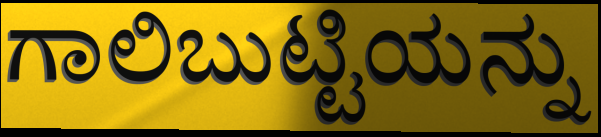
ಗಾಲಿಬುಟ್ಟಿಯನ್ನು